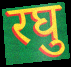
रघु